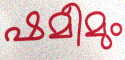
ഷമീമും